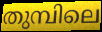
തുമ്പിലെ